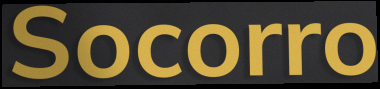
Socorro